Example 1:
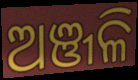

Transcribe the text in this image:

ଅଞ୍ଜଳି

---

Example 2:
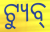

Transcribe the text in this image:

ଟ୍ୟୁବ୍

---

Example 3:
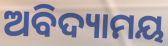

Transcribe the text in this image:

ଅବିଦ୍ୟାମୟ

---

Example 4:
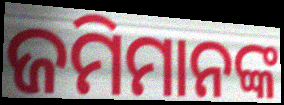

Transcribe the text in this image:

ଜମିମାନଙ୍କ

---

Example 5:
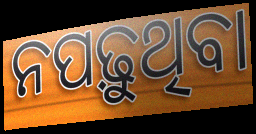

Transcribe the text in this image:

ନପଢ଼ୁଥିବା